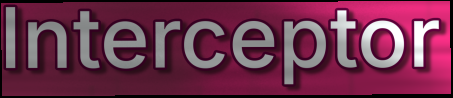
Interceptor